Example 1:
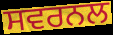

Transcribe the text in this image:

ਸਵਰਨਲ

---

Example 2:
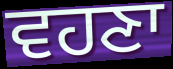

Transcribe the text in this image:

ਵਹਣਾ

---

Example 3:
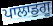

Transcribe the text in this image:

ਪਾਲਾਡੁਗੂ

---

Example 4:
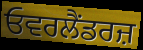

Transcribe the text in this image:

ਓਵਰਲੈਂਡਰਜ਼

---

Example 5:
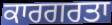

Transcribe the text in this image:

ਕਾਰਗਰਤਾ